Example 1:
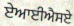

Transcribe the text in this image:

ਏਆਈਐਸਏ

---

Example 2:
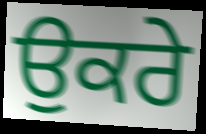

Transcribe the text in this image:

ਉਕਰੇ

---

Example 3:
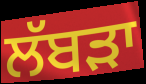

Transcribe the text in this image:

ਲੱਬੜਾ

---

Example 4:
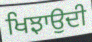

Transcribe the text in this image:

ਖਿਝਾਉਦੀ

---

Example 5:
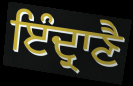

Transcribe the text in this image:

ਇੰਦ੍ਰਾਣੈ